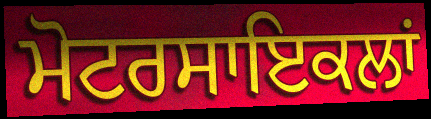
ਮੋਟਰਸਾਇਕਲਾਂ